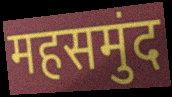
महसमुंद